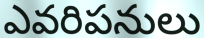
ఎవరిపనులు